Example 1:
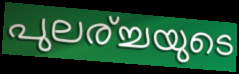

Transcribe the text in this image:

പുലര്ച്ചയുടെ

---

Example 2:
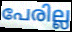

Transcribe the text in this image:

പേരില്ല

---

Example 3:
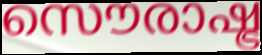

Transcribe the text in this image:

സൌരാഷ്ട്ര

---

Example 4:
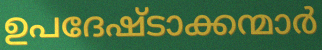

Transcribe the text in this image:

ഉപദേഷ്ടാക്കന്മാർ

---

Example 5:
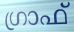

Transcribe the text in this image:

ഗ്രാഫ്